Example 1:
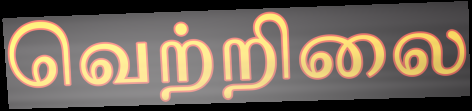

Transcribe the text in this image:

வெற்றிலை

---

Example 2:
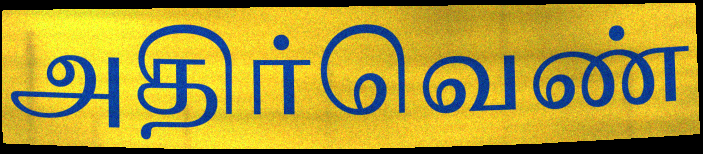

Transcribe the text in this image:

அதிர்வெண்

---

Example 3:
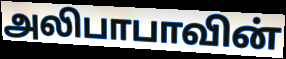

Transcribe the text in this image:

அலிபாபாவின்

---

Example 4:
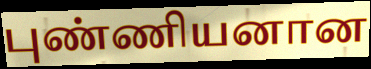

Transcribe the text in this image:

புண்ணியனான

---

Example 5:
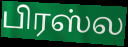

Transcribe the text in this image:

பிரஸ்ல